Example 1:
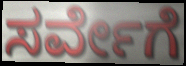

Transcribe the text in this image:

ಸರ್ವೇಗೆ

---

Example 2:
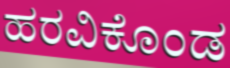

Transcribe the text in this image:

ಹರವಿಕೊಂಡ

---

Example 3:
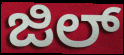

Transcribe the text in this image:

ಜಿಲ್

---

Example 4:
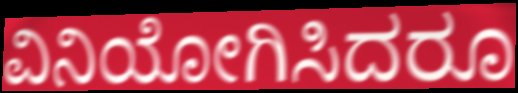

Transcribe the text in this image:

ವಿನಿಯೋಗಿಸಿದರೂ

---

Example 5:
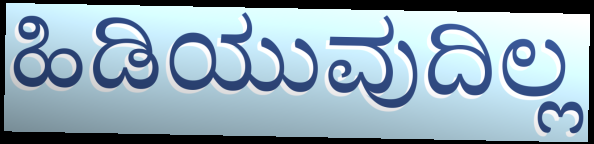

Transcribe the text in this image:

ಹಿಡಿಯುವುದಿಲ್ಲ